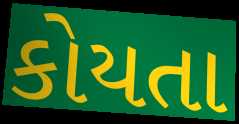
કોયતા